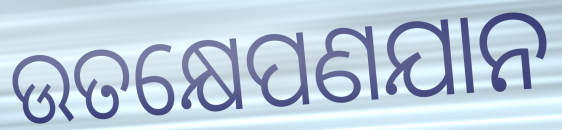
ଉତକ୍ଷେପଣଯାନ